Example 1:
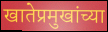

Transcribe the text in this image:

खातेप्रमुखांच्या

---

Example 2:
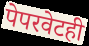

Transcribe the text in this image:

पेपरवेटही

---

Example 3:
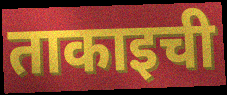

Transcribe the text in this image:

ताकाइची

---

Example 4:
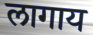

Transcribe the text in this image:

लागाय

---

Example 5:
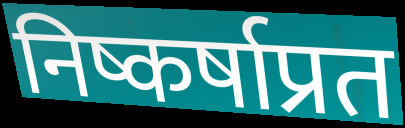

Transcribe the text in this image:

निष्कर्षाप्रत